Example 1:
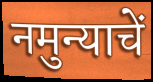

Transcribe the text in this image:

नमुन्याचें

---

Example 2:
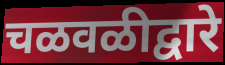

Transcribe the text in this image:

चळवळीद्वारे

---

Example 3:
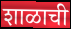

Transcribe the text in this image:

शाळाची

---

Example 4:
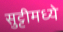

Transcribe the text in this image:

सुट्टीमध्ये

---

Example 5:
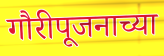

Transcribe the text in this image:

गौरीपूजनाच्या